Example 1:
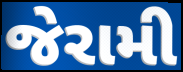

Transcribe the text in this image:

જેરામી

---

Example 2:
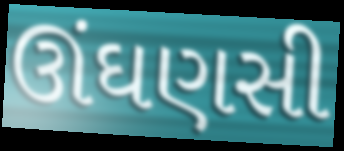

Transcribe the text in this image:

ઊંઘણસી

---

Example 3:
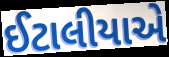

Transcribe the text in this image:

ઈટાલીયાએ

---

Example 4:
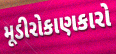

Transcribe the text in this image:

મૂડીરોકાણકારો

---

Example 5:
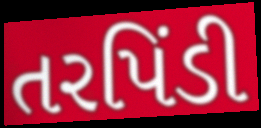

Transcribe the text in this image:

તરપિંડી